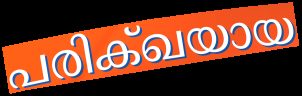
പരിക്ഖയായ